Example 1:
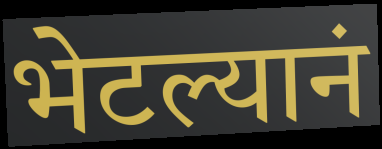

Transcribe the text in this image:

भेटल्यानं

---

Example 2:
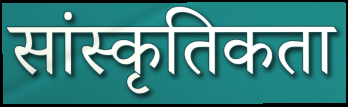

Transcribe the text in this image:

सांस्कृतिकता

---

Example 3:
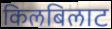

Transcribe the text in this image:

किलबिलाट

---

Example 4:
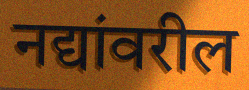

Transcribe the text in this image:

नद्यांवरील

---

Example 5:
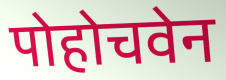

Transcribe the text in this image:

पोहोचवेन